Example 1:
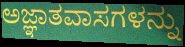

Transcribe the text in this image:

ಅಜ್ಞಾತವಾಸಗಳನ್ನು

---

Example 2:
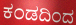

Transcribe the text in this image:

ಕಂಡದಿಂದ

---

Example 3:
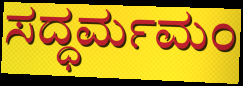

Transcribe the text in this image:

ಸದ್ಧರ್ಮಮಂ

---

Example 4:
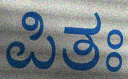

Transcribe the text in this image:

ಪಿತಃ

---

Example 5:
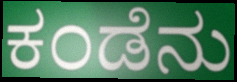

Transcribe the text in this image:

ಕಂಡೆನು